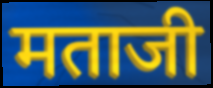
मताजी